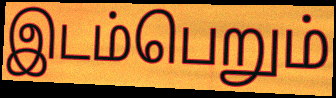
இடம்பெறும்